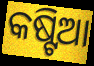
କଷ୍ଟିଆ